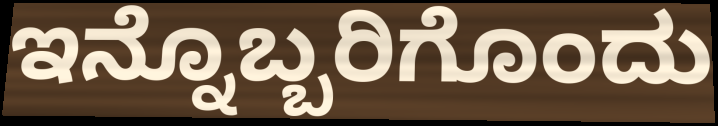
ಇನ್ನೊಬ್ಬರಿಗೊಂದು